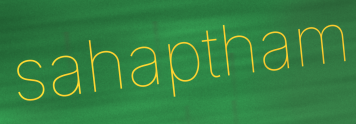
sahaptham